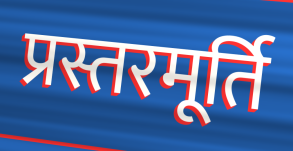
प्रस्तरमूर्ति